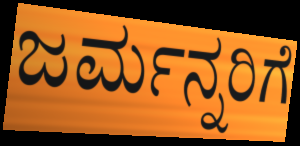
ಜರ್ಮನ್ನರಿಗೆ